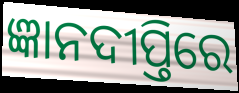
ଜ୍ଞାନଦୀପ୍ତିରେ